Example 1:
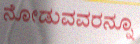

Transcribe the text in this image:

ನೋಡುವವರನ್ನೂ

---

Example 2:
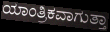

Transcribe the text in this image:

ಯಾಂತ್ರಿಕವಾಗುತ್ತಾ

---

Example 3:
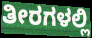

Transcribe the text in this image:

ತೀರಗಳಲ್ಲಿ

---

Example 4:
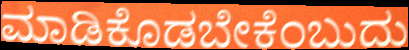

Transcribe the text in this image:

ಮಾಡಿಕೊಡಬೇಕೆಂಬುದು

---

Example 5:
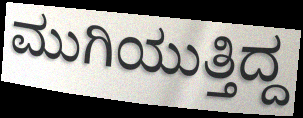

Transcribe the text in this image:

ಮುಗಿಯುತ್ತಿದ್ದ